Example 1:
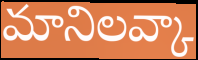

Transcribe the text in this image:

మానిలవ్కా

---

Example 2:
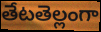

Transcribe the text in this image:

తేటతెల్లంగా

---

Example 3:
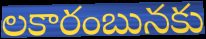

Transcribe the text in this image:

లకారంబునకు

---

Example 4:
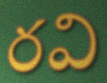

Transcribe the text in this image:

రవి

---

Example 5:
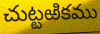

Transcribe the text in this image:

చుట్టఱికము